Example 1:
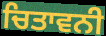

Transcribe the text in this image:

ਚਿਤਾਵਨੀ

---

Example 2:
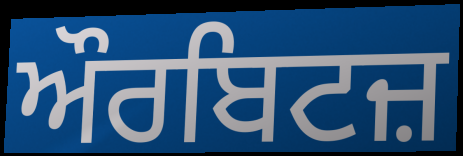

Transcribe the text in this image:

ਔਰਬਿਟਜ਼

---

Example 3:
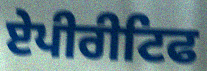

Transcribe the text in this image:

ਏਪੀਰੀਟਿਫ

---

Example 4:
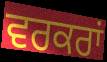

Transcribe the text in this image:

ਵਰਕਰਾਂ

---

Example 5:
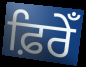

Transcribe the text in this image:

ਫ਼ਿਰੇਁ